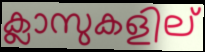
ക്ലാസുകളില്